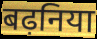
बढ़निया